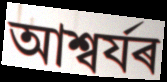
আশ্বৰ্যৰ